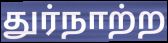
துர்நாற்ற